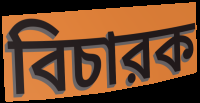
বিচারক